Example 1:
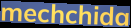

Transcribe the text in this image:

mechchida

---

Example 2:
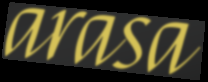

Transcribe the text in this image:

arasa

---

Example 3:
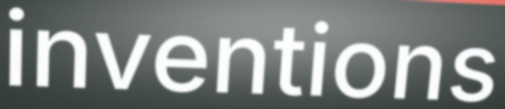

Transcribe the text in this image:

inventions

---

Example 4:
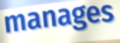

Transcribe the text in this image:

manages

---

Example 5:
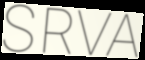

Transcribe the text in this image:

SRVA